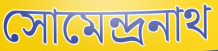
সোমেন্দ্রনাথ